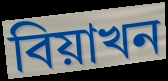
বিয়াখন